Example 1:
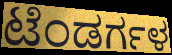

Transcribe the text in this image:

ಟೆಂಡರ್ಗಳ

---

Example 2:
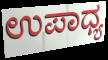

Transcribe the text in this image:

ಉಪಾಧ್ಯ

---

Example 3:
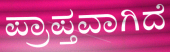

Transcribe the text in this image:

ಪ್ರಾಪ್ತವಾಗಿದೆ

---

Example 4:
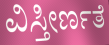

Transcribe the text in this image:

ವಿಸ್ತೀರ್ಣತೆ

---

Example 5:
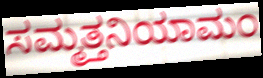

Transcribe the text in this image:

ಸಮ್ಮತ್ತನಿಯಾಮಂ